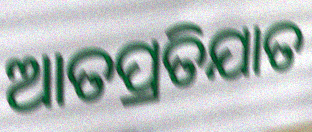
ଆତପ୍ରତିଯାତ